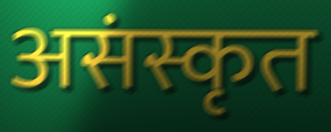
असंस्कृत